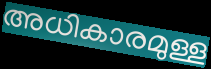
അധികാരമുള്ള